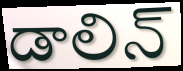
డాలిన్